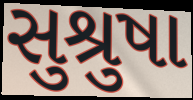
સુશ્રુષા